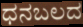
ಧನಬಲದ